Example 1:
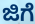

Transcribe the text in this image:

ಜಿಗೆ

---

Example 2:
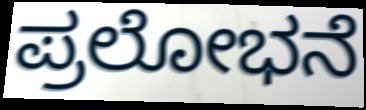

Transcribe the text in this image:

ಪ್ರಲೋಭನೆ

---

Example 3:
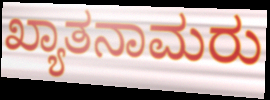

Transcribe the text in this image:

ಖ್ಯಾತನಾಮರು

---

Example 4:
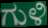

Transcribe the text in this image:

ಗುಳಿ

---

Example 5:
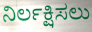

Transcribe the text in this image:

ನಿರ್ಲಕ್ಷಿಸಲು